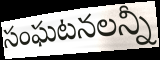
సంఘటనలన్నీ